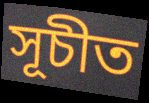
সূচীত